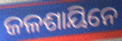
ଜଳଶାୟିନେ